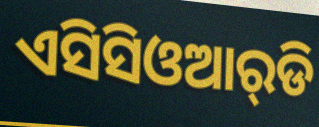
ଏସିସିଓଆର୍‌ଡି